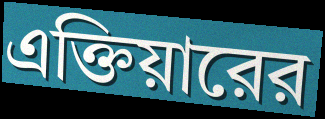
এক্তিয়ারের